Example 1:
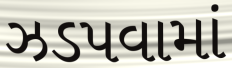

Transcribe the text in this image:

ઝડપવામાં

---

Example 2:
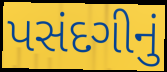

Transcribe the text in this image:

પસંદગીનું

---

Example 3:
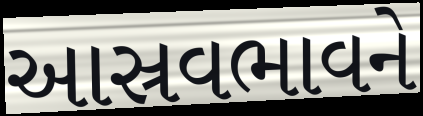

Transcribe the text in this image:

આસ્રવભાવને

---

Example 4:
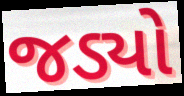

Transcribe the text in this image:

જડ્યો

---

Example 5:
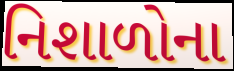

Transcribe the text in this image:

નિશાળોના